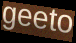
geeto